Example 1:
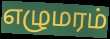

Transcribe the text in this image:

எழுமரம்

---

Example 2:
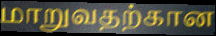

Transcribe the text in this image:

மாறுவதற்கான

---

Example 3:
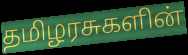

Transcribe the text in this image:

தமிழரசுகளின்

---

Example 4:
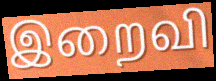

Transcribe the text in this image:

இறைவி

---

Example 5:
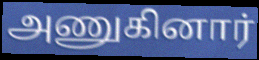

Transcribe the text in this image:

அணுகினார்